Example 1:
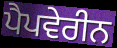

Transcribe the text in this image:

ਪੈਪਵੇਰੀਨ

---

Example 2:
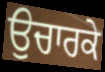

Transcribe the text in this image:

ਉਚਾਰਕੇ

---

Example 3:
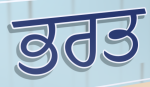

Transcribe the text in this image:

ਭਰਤ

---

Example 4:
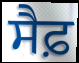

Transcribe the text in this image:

ਸੈਫ਼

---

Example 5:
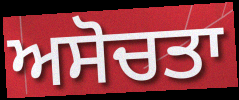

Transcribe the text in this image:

ਅਸੋਚਤਾ